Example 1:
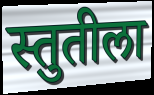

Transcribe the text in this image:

स्तुतीला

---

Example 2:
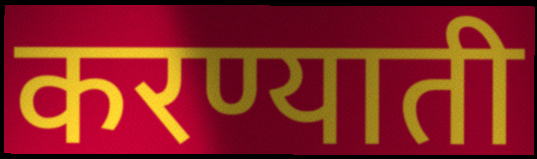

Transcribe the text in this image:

करण्याती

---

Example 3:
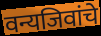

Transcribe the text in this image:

वन्यजिवांचे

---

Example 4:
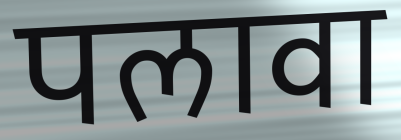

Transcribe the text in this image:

पलावा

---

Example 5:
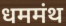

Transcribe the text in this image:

धममंथ